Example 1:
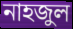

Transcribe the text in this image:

নাহজুল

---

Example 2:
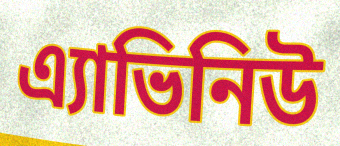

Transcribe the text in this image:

এ্যাভিনিউ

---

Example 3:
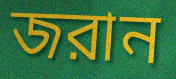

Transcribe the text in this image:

জরান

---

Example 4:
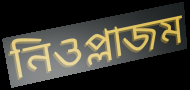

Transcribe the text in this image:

নিওপ্লাজম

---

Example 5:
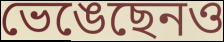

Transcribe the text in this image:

ভেঙেছেনও